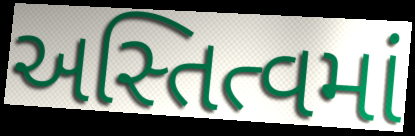
અસ્તિત્વમાં